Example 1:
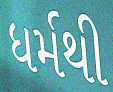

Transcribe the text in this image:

ધર્મથી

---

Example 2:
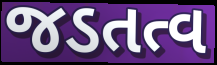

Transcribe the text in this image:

જડતત્વ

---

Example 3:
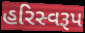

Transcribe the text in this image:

હરિસ્વરૂપ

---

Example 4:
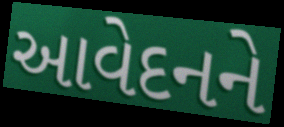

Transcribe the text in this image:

આવેદનને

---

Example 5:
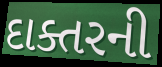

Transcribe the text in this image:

દાક્તરની